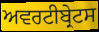
ਅਵਰਟੀਬ੍ਰੇਟਸ